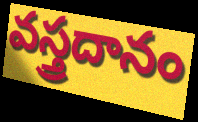
వస్త్రదానం